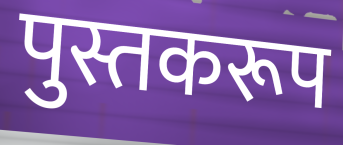
पुस्तकरूप